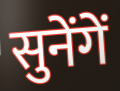
सुनेंगें